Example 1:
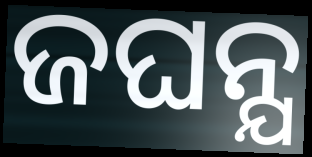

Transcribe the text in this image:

ଜଘନ୍ଯ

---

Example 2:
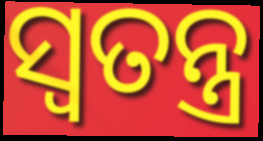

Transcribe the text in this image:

ସ୍ୱତନ୍ତ୍ର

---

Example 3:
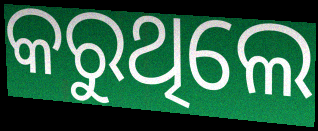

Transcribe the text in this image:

କରୁଥିଲେ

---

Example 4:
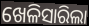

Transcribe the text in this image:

ଖେଳିସାରିଲା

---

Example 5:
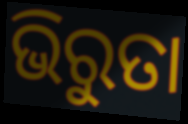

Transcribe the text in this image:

ଭିରୁତା